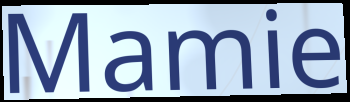
Mamie